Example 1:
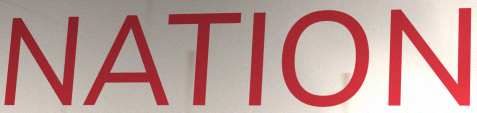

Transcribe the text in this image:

NATION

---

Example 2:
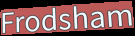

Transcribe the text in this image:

Frodsham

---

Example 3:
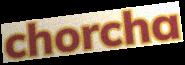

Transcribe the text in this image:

chorcha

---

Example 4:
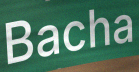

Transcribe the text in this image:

Bacha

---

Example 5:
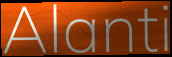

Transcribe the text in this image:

Alanti